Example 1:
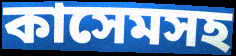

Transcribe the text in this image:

কাসেমসহ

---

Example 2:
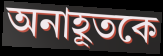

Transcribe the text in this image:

অনাহূতকে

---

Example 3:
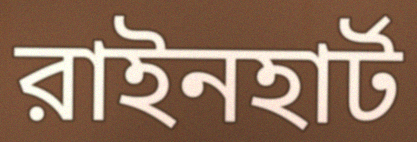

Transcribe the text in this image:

রাইনহার্ট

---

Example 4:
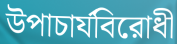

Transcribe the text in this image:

উপাচার্যবিরোধী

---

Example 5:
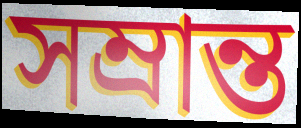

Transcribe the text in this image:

সম্রান্ত